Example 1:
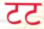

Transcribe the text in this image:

टट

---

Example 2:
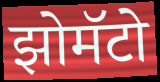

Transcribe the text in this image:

झोमॅटो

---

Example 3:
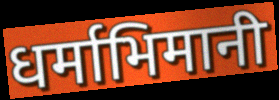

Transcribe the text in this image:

धर्माभिमानी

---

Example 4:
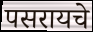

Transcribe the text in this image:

पसरायचे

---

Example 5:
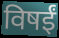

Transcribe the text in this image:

विषईं